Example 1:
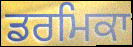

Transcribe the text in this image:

ਡਰਮਿਕਾ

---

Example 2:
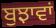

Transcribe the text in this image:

ਬੁਝਾਵਾਂ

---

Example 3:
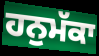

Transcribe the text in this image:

ਹਨੁਮੱਕਾ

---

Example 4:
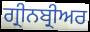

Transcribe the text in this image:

ਗ੍ਰੀਨਬ੍ਰੀਅਰ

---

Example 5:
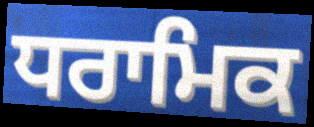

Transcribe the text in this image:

ਧਰਾਮਿਕ